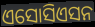
ଏସୋସିଏସନ